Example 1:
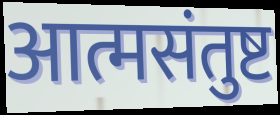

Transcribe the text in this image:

आत्मसंतुष्ट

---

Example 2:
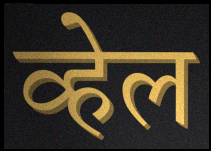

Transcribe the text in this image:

व्हेल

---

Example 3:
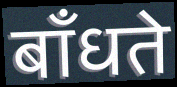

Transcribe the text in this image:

बाँधते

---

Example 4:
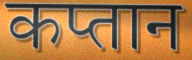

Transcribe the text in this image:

कप्‍तान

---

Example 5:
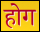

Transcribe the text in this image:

होग